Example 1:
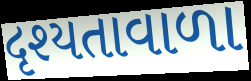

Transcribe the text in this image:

દૃશ્યતાવાળા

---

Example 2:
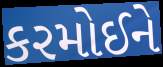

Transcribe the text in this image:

કરમોઈને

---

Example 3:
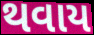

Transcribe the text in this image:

થવાય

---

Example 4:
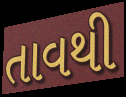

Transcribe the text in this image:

તાવથી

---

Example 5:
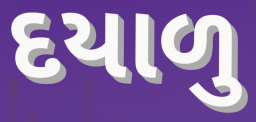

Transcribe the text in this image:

દયાળુ